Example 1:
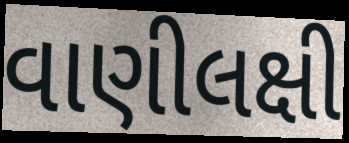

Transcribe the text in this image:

વાણીલક્ષી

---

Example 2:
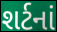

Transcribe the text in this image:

શર્ટનાં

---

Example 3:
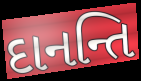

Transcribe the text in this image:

દાનન્તિ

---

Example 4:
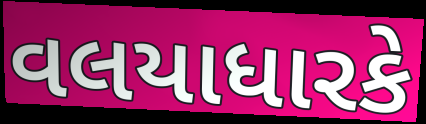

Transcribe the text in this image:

વલયાધારકે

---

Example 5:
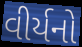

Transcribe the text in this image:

વીર્યનો